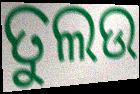
ତୁଲଉ